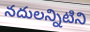
నదులన్నిటిని